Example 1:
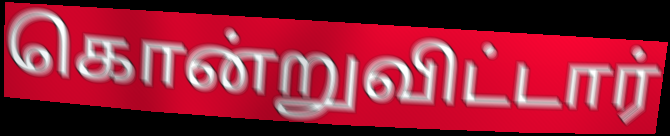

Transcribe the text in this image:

கொன்றுவிட்டார்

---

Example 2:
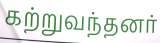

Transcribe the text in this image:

கற்றுவந்தனர்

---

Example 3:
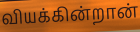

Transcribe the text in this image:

வியக்கின்றான்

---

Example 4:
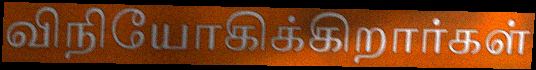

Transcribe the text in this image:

விநியோகிக்கிறார்கள்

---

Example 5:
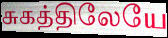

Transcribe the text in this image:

சுகத்திலேயே